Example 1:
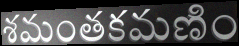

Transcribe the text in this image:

శమంతకమణిం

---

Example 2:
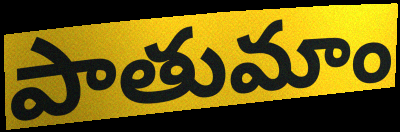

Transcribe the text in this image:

పాతుమాం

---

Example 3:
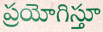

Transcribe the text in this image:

ప్రయోగిస్తూ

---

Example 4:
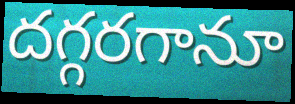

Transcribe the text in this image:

దగ్గరగానూ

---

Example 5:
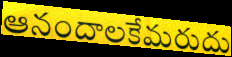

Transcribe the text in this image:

ఆనందాలకేమరుదు